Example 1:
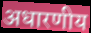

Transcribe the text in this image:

अधारणीय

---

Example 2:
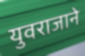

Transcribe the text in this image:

युवराजाने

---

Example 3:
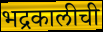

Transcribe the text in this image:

भद्रकालीची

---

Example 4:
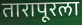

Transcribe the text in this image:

तारापूरला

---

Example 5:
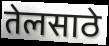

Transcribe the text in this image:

तेलसाठे